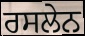
ਰਸਲੇਨ